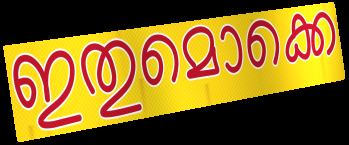
ഇതുമൊക്കെ